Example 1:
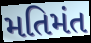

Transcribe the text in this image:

મતિમંત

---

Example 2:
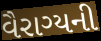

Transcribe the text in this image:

વૈરાગ્યની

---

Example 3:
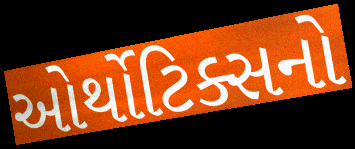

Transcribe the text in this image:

ઓર્થોટિક્સનો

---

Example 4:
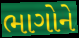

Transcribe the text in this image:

ભાગોને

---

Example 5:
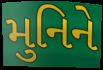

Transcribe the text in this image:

મુનિને